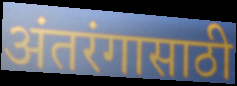
अंतरंगासाठी